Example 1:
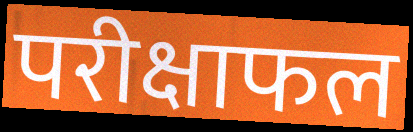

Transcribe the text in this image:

परीक्षाफल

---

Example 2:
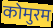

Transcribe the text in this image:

कोमुरम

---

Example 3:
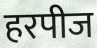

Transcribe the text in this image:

हरपीज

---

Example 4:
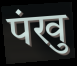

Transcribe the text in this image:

पंखु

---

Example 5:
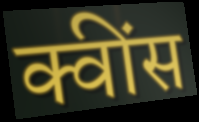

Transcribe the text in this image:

क्वींस